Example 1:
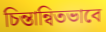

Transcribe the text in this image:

চিন্তান্বিতভাবে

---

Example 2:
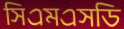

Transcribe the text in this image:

সিএমএসডি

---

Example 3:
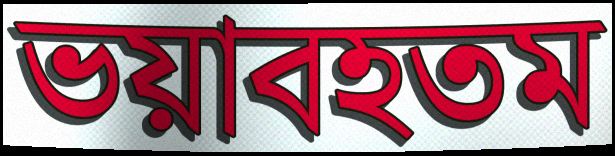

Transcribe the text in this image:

ভয়াবহতম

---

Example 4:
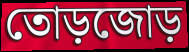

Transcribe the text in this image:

তোড়জোড়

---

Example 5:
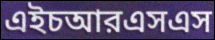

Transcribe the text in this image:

এইচআরএসএস